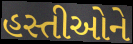
હસ્તીઓને